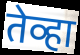
तेव्हा